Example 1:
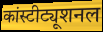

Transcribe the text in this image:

कांस्टीट्यूशनल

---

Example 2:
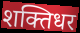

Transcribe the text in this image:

शक्तिधर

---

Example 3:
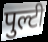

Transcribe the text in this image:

पुल्टी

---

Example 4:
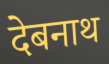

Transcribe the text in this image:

देबनाथ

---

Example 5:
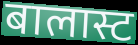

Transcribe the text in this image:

बालास्ट